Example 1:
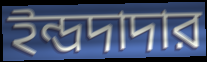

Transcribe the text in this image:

ইন্দ্রদাদার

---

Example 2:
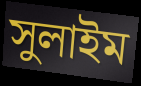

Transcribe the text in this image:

সুলাইম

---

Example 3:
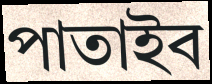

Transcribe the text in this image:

পাতাইব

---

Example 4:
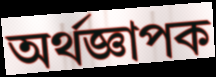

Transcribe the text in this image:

অর্থজ্ঞাপক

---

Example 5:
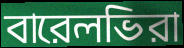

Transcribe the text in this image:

বারেলভিরা